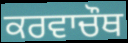
ਕਰਵਾਚੌਥ